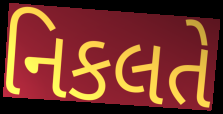
નિકલતે